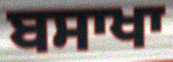
ਬਸਾਖਾ